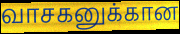
வாசகனுக்கான